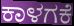
ಕಾಳಗಕೆ